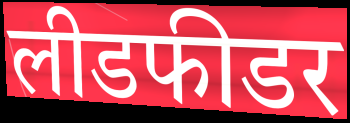
लीडफीडर